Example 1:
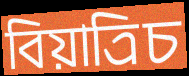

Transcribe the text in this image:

বিয়াত্রিচ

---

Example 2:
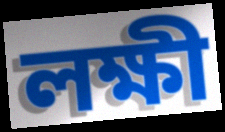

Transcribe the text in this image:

লক্ষী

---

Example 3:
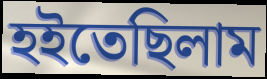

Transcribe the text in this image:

হইতেছিলাম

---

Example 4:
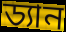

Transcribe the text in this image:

ড্যান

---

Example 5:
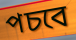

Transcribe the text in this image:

পচবে